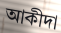
আকীদা